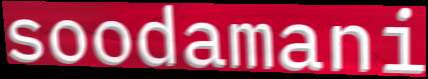
soodamani